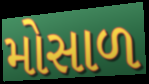
મોસાળ